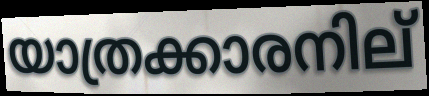
യാത്രക്കാരനില്